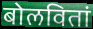
बोलवितां